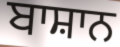
ਬਾਸ਼ਾਨ